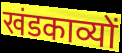
खंडकाव्यों